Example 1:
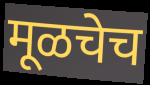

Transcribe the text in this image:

मूळचेच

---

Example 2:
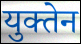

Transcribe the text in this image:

युक्तेन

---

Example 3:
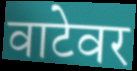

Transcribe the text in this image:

वाटेवर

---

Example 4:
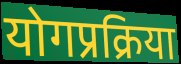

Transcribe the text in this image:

योगप्रक्रिया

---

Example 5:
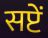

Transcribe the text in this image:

सप्टें